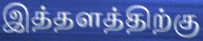
இத்தளத்திற்கு